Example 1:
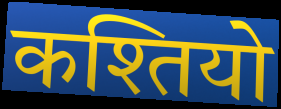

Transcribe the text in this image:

कश्तियो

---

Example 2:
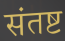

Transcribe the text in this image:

संतष्ट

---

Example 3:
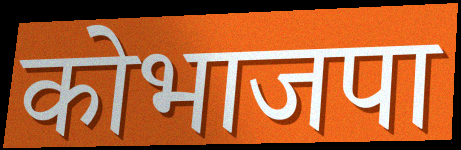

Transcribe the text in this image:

कोभाजपा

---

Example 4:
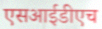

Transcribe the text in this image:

एसआईडीएच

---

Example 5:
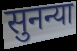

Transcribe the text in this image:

सुनन्या